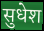
सुधेश